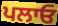
ਪਲਾਓ